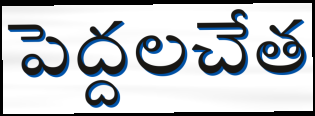
పెద్దలచేత